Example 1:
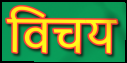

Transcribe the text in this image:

विचय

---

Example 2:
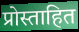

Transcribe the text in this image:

प्रोस्ताहित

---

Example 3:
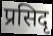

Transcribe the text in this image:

प्रसिदृ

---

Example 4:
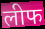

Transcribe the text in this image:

लीफ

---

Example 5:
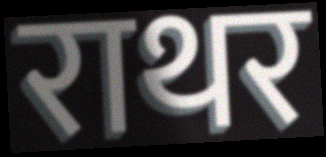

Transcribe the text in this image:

राथर